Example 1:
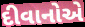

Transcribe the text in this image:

દીવાનોએ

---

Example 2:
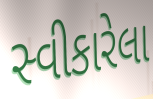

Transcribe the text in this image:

સ્વીકારેલા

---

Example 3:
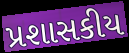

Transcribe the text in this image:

પ્રશાસકીય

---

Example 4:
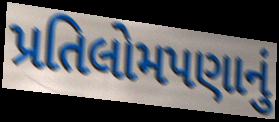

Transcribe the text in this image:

પ્રતિલોમપણાનું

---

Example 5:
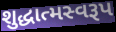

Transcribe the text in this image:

શુદ્ધાત્મસ્વરૂપ